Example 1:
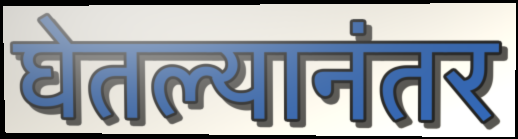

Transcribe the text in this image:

घेतल्यानंतर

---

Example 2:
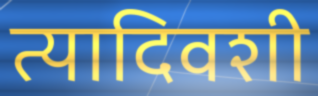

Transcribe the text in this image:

त्यादिवशी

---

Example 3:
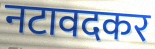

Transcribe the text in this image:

नटावदकर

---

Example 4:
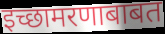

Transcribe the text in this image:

इच्छामरणाबाबत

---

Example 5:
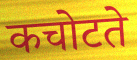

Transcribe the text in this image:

कचोटते